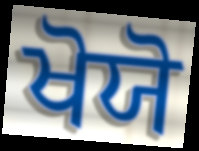
ਖੋਯੋ